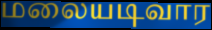
மலையடிவார